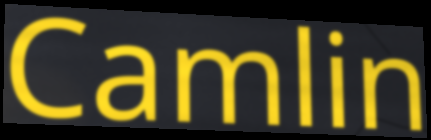
Camlin